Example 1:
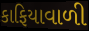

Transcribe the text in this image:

કાફિયાવાળી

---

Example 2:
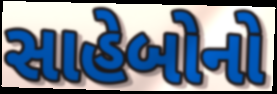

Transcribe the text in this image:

સાહેબોનો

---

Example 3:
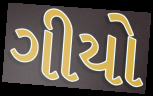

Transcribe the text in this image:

ગીયો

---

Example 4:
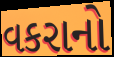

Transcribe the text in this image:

વકરાનો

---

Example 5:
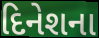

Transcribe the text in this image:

દિનેશના